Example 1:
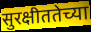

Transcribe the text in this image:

सुरक्षीततेच्या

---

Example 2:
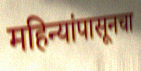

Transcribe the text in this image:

महिन्यांपासूनचा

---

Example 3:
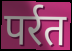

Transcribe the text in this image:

पर्रत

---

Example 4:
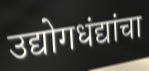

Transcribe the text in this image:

उद्योगधंद्यांचा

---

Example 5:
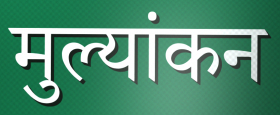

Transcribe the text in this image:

मुल्यांकन